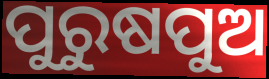
ପୁରୁଷପୁଅ